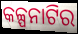
କଳ୍ପନାଟିର